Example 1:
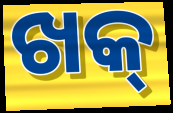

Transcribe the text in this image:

ଖକ୍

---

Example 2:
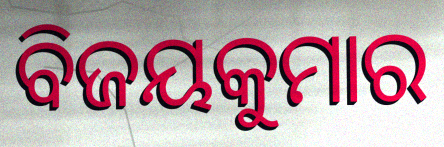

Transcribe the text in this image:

ବିଜୟକୁମାର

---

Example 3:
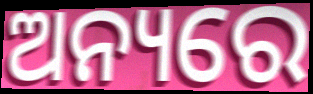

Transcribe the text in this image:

ଅନ୍ୟରେ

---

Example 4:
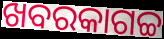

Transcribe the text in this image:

ଖବରକାଗଚ୍ଚ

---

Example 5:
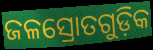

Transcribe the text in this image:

ଜଳସ୍ରୋତଗୁଡ଼ିକ